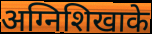
अग्निशिखाके